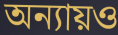
অন্যায়ও